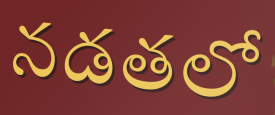
నడతలో